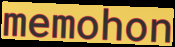
memohon